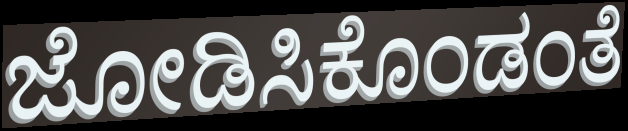
ಜೋಡಿಸಿಕೊಂಡಂತೆ